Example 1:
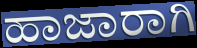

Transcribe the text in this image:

ಹಾಜಾರಾಗಿ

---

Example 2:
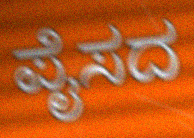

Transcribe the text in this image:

ಪೈಸದ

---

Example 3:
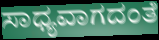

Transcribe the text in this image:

ಸಾಧ್ಯವಾಗದಂತೆ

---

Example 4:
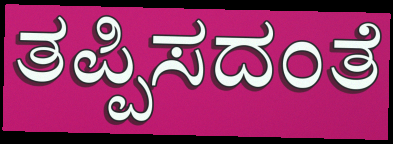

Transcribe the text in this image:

ತಪ್ಪಿಸದಂತೆ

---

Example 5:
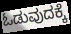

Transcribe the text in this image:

ಓಡುವುದಕ್ಕೆ